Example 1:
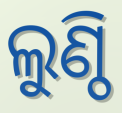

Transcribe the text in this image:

ଲୁଣ୍ଠି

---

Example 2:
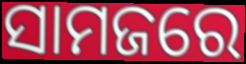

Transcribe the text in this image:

ସାମଜରେ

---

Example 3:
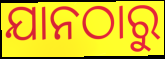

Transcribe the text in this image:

ଯାନଠାରୁ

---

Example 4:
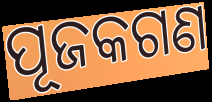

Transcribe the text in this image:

ପୂଜକଗଣ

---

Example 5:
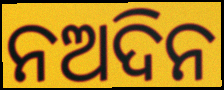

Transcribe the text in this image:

ନଅଦିନ